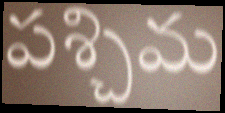
పశ్చిమ